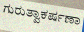
ಗುರುತ್ವಾಕರ್ಷಣಾ